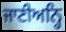
ਜਾਣੀਅਨ੍ਹਿ